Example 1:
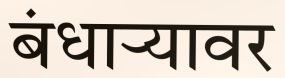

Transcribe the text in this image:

बंधाऱ्यावर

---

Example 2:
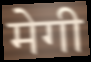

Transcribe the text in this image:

मेगी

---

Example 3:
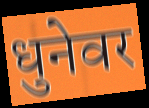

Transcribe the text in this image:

धुनेवर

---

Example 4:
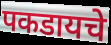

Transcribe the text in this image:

पकडायचे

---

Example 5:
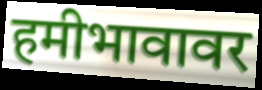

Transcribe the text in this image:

हमीभावावर